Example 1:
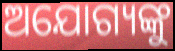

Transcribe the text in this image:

ଅଯୋଗ୍ୟଙ୍କୁ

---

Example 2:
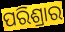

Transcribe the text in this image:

ପରିଶ୍ରାର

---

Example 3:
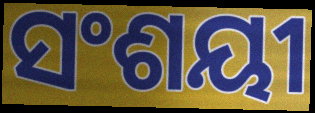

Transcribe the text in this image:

ସଂଶୟୀ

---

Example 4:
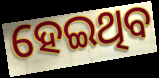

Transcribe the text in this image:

ହେଇଥିବ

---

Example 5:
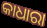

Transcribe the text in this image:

କାଧାରା